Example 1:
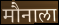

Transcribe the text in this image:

मौनाला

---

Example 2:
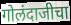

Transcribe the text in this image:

गोलंदाजीचा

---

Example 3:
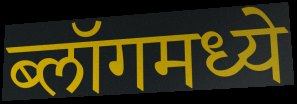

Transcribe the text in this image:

ब्लॉगमध्ये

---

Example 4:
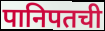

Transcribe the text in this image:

पानिपतची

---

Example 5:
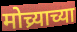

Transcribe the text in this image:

मोच्र्याच्या